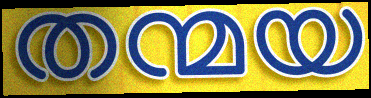
തന്മയ